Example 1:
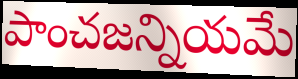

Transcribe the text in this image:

పాంచజన్నియమే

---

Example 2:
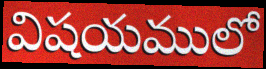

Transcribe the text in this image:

విషయములో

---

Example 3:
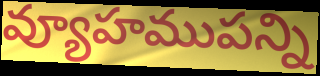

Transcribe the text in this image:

వ్యూహముపన్ని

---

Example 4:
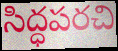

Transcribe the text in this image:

సిద్ధపరచి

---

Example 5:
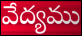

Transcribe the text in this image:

వేద్యము